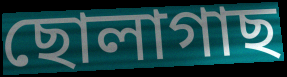
ছোলাগাছ